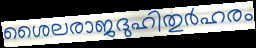
ശൈലരാജദുഹിതുർഹരം